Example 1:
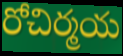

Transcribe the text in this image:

రోచిర్మయ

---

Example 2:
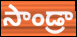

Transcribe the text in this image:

సాండ్రా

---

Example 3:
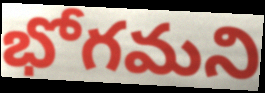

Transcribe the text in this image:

భోగమని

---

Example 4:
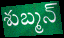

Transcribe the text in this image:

శుబ్మన్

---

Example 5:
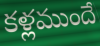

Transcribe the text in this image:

కళ్లముందే